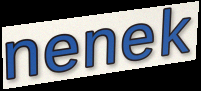
nenek